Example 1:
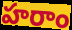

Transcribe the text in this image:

హరాం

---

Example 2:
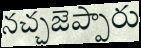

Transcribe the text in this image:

నచ్చజెప్పారు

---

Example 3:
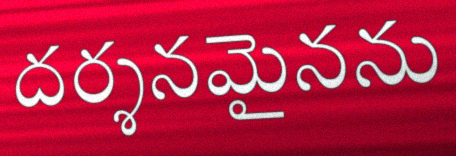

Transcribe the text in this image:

దర్శనమైనను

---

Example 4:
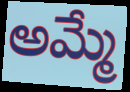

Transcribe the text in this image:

అమ్మే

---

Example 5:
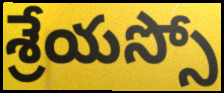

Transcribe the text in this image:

శ్రేయస్సో